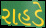
રાહડે